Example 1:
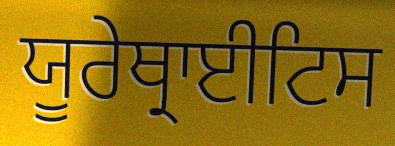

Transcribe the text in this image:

ਯੂਰੇਥ੍ਰਾਈਟਿਸ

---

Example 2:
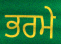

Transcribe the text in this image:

ਭਰਮੇ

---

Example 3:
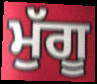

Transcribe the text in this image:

ਮੁੱਗੂ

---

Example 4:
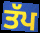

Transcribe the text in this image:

ਤੱਪ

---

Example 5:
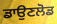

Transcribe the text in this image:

ਡਾਉਣਲੋਡ